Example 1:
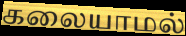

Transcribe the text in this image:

கலையாமல்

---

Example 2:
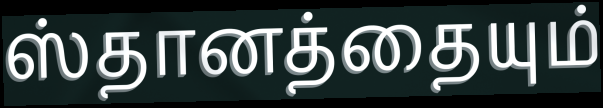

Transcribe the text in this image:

ஸ்தானத்தையும்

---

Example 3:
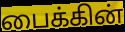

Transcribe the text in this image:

பைக்கின்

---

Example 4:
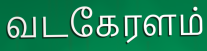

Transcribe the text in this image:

வடகேரளம்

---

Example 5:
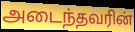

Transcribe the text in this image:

அடைந்தவரின்